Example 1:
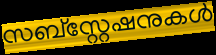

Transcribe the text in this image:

സബ്സ്റ്റേഷനുകൾ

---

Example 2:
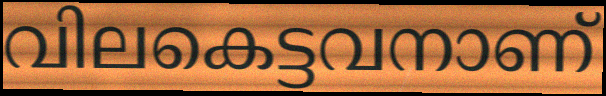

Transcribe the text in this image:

വിലകെട്ടവനാണ്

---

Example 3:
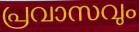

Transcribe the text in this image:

പ്രവാസവും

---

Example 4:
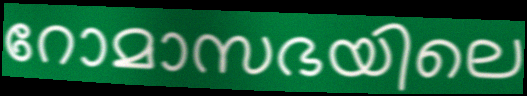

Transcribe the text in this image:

റോമാസഭയിലെ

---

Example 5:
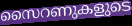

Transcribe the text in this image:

സൈറണുകളുടെ